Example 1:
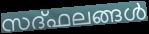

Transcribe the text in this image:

സദ്ഫലങ്ങൾ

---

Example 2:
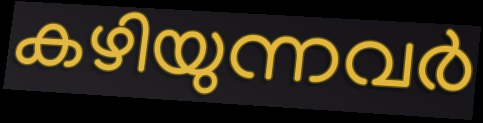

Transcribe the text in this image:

കഴിയുന്നവർ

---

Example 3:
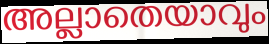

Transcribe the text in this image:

അല്ലാതെയാവും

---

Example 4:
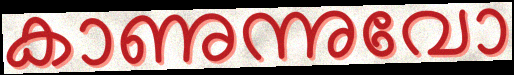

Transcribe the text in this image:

കാണുന്നുവോ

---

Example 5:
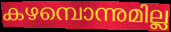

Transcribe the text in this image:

കഴമ്പൊന്നുമില്ല